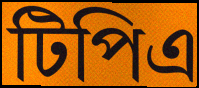
টিপিএ